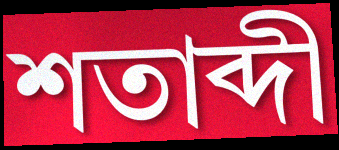
শতাব্দী